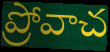
ప్రోవాచ